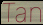
Tan